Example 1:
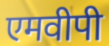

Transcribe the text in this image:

एमवीपी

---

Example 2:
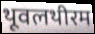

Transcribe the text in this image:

थूवलथीरम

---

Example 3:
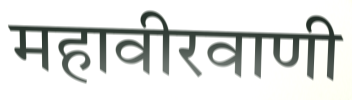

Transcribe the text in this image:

महावीरवाणी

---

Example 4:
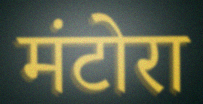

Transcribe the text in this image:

मंटोरा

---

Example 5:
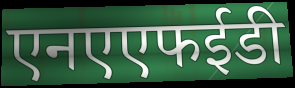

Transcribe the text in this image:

एनएएफईडी